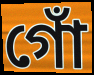
গোঁ